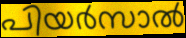
പിയർസാൽ